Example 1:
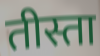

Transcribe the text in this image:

तीस्ता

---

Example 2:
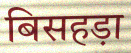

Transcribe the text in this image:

बिसहड़ा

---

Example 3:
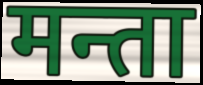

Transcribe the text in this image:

मन्ता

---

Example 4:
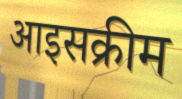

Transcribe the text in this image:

आइसक्रीम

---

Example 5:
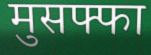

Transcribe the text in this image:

मुसफ्फा